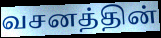
வசனத்தின்